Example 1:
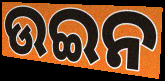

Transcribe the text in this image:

ଉଇନ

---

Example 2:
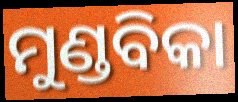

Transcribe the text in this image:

ମୁଣ୍ଡବିକା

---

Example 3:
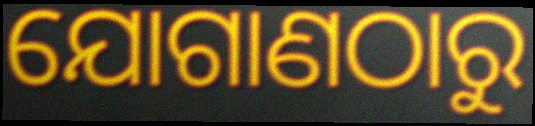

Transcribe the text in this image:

ଯୋଗାଣଠାରୁ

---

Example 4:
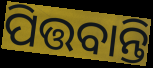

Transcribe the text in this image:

ପିତ୍ତବାନ୍ତି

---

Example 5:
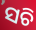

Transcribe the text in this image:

ସଚି